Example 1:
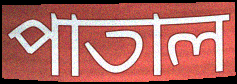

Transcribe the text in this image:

পাতাল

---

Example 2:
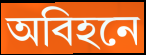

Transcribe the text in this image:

অবিহনে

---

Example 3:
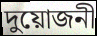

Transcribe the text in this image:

দুয়োজনী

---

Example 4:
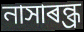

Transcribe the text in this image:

নাসাৰন্ধ্ৰ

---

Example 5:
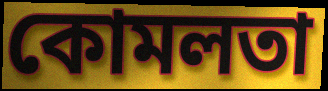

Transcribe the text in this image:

কোমলতা